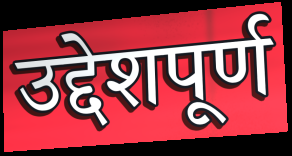
उद्देशपूर्ण